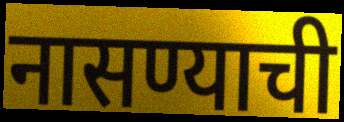
नासण्याची